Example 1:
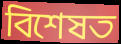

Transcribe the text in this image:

বিশেষত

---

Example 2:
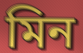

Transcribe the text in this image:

মিন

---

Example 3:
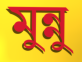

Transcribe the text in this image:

মুন্নু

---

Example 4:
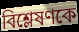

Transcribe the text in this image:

বিশ্লেষণকে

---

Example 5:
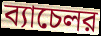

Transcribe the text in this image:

ব্যাচেলর